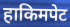
हाकिमपेट